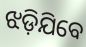
ଝଡ଼ିଯିବେ